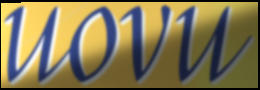
uovu